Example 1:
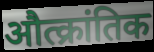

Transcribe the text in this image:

औत्क्रांतिक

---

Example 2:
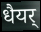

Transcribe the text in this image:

धैयर्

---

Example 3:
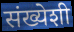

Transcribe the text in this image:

संख्येशी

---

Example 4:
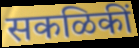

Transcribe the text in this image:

सकळिकीं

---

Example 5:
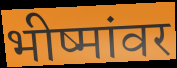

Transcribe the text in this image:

भीष्मांवर